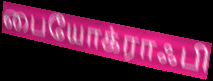
பையோக்ராஃபி